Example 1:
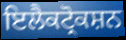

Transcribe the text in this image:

ਇਲੈਕਟ੍ਰੋਕਸ਼ਨ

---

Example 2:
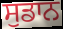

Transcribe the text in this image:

ਸੁਡਾਨ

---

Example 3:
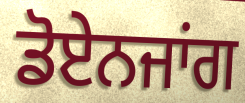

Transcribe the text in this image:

ਡੋਏਨਜਾਂਗ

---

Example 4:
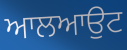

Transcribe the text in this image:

ਆਲਆਉਟ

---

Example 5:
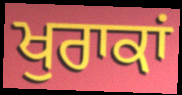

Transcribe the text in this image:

ਖੁਰਾਕਾਂ